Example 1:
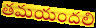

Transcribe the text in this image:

తమయందలి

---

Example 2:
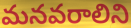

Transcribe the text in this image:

మనవరాలిని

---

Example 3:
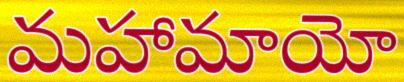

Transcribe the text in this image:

మహామాయో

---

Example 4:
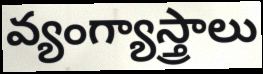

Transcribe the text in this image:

వ్యంగ్యాస్త్రాలు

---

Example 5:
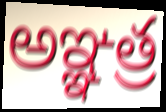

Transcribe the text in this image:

అఞ్ఞత్ర